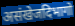
असंखेजदिभागो